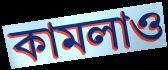
কামলাও